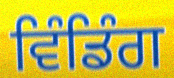
ਵਿੰਡਿੰਗ